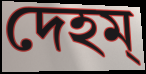
দেহম্